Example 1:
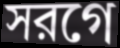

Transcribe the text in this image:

সরগে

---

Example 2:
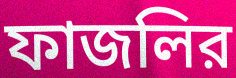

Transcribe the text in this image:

ফাজলির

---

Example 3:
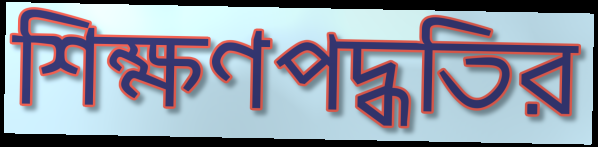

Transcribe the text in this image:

শিক্ষণপদ্ধতির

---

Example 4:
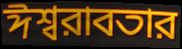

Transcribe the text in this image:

ঈশ্বরাবতার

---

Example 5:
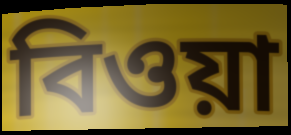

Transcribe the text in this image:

বিওয়া